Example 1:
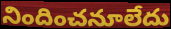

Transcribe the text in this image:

నిందించనూలేదు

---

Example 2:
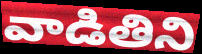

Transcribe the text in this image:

వాడితిని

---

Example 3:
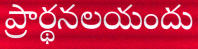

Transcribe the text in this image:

ప్రార్థనలయందు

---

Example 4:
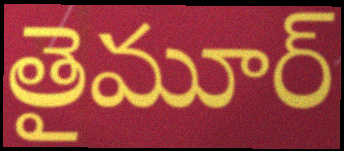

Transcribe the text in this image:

తైమూర్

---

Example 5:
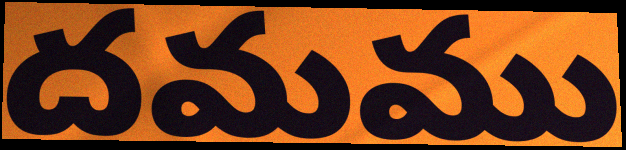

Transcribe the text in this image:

దమము